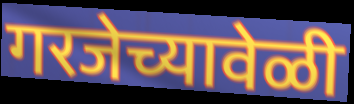
गरजेच्यावेळी